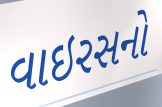
વાઇરસનો